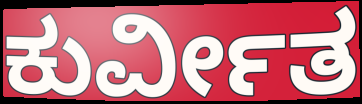
ಕುರ್ವೀತ